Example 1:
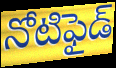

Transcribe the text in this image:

నోటిఫైడ్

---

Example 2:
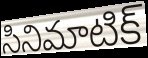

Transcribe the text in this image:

సినిమాటిక్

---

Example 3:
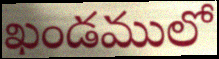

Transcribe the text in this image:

ఖండములో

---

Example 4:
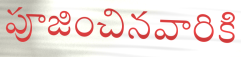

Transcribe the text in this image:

పూజించినవారికి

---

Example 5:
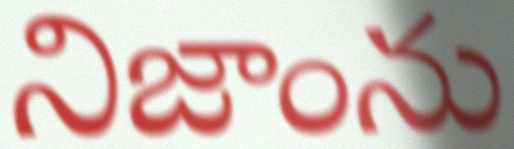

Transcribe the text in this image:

నిజాంను